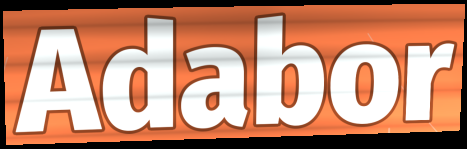
Adabor